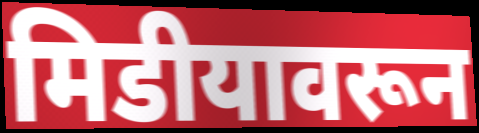
मिडीयावरून